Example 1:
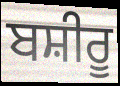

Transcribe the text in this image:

ਬਸ਼ੀਰੂ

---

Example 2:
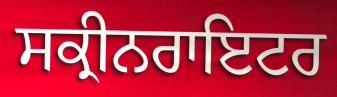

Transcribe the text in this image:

ਸਕ੍ਰੀਨਰਾਇਟਰ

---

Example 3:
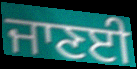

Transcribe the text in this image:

ਜਾਣਈ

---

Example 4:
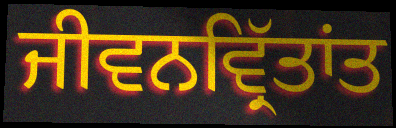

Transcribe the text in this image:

ਜੀਵਨਵ੍ਰਿੱਤਾਂਤ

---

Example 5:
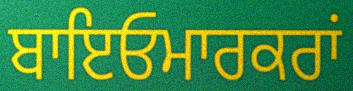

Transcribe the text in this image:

ਬਾਇਓਮਾਰਕਰਾਂ